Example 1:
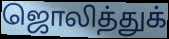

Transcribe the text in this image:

ஜொலித்துக்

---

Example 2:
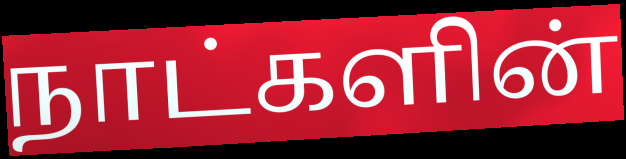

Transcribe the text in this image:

நாட்களின்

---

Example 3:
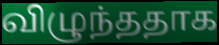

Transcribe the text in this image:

விழுந்ததாக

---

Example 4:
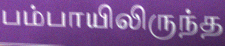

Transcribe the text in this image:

பம்பாயிலிருந்த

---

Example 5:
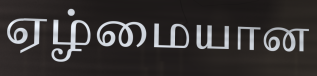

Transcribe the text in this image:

ஏழ்மையான